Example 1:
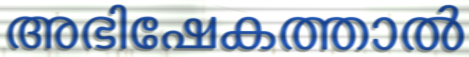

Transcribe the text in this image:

അഭിഷേകത്താൽ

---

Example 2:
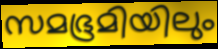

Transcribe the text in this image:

സമഭൂമിയിലും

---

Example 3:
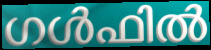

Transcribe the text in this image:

ഗൾഫിൽ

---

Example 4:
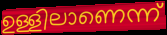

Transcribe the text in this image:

ഉള്ളിലാണെന്ന്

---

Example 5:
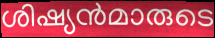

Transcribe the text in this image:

ശിഷ്യൻമാരുടെ